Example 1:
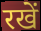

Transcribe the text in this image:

रखें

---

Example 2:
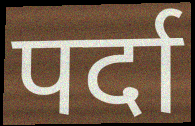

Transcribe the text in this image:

पर्दा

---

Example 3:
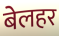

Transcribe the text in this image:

बेलहर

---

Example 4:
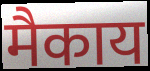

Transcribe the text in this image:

मैकाय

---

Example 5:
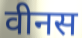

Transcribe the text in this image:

वीनस